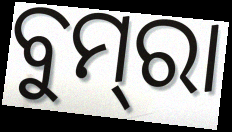
ବୁମ୍‌ରା